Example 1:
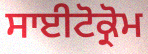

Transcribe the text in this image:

ਸਾਈਟੋਕ੍ਰੋਮ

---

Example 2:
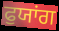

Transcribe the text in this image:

ਫੁਯਾਂਗ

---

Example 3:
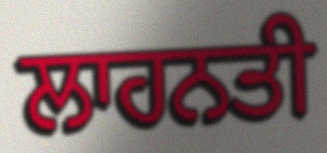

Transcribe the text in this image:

ਲਾਹਨਤੀ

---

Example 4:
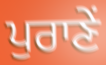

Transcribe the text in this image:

ਪੁਰਾਣੇਂ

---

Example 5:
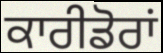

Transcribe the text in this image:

ਕਾਰੀਡੋਰਾਂ